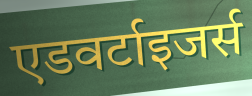
एडवर्टाइजर्स